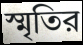
স্মৃতির